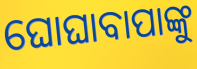
ଘୋଘାବାପାଙ୍କୁ